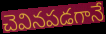
చెవినపడగానే